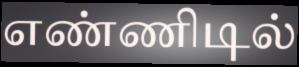
எண்ணிடில்